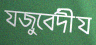
যজুর্বেদীয